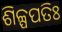
ଶିଳ୍ପପତିଃ